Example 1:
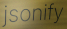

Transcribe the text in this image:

jsonify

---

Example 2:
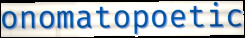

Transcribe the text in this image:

onomatopoetic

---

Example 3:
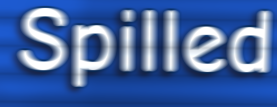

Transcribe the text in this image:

Spilled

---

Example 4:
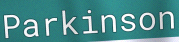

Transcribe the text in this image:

Parkinson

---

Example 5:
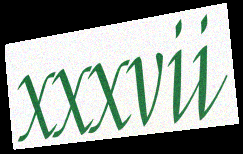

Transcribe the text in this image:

xxxvii